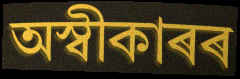
অস্বীকাৰৰ